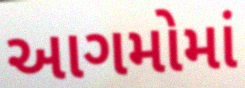
આગમોમાં